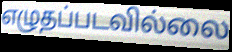
எழுதப்படவில்லை